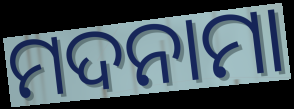
ମଦନାମା